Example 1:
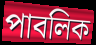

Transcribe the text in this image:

পাবলিক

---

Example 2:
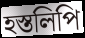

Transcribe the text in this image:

হস্তলিপি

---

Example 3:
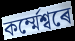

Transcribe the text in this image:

কৰ্ম্মেশ্বৰে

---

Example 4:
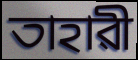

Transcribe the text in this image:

তাহাৱী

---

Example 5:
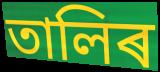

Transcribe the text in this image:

তালিৰ